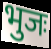
भुजः